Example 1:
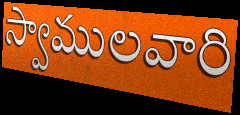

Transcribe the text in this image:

స్వాములవారి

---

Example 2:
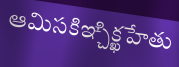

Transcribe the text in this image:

ఆమిసకిఞ్చిక్ఖహేతు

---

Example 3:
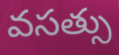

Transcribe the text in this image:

వసత్సు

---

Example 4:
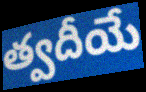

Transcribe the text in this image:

త్వదీయే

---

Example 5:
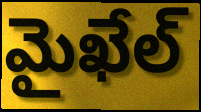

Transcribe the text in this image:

మైఖేల్